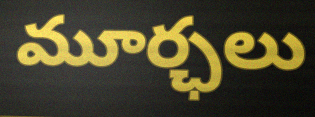
మూర్ఛలు